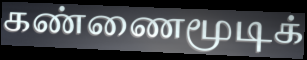
கண்ணைமூடிக்